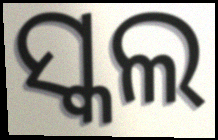
ସ୍କଲ